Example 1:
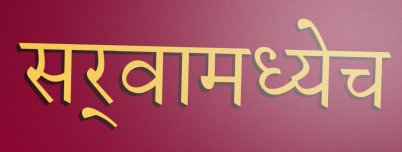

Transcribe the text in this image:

सर्वामध्येच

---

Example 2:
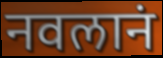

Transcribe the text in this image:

नवलानं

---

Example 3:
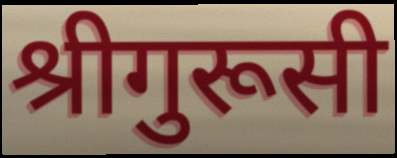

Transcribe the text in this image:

श्रीगुरूसी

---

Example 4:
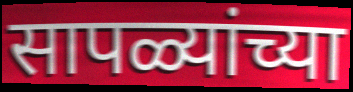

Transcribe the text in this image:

सापळ्यांच्या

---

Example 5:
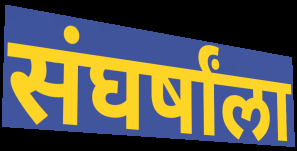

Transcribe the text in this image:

संघर्षांला